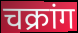
चक्रांग